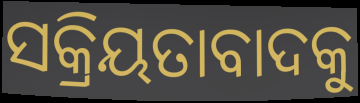
ସକ୍ରିୟତାବାଦକୁ